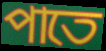
পাতে